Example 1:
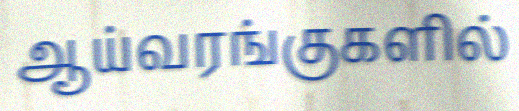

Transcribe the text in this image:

ஆய்வரங்குகளில்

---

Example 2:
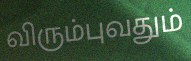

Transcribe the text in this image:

விரும்புவதும்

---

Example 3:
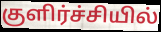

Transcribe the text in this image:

குளிர்ச்சியில்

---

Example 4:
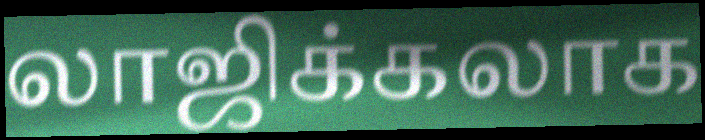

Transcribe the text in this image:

லாஜிக்கலாக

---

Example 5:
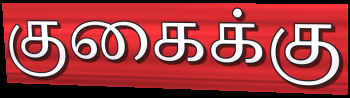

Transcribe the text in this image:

குகைக்கு